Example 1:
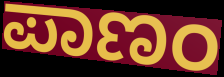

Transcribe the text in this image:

ಪಾಣಂ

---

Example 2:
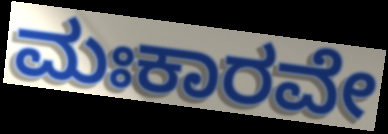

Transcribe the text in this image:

ಮಃಕಾರವೇ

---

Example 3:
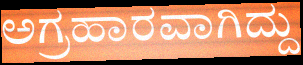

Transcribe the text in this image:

ಅಗ್ರಹಾರವಾಗಿದ್ದು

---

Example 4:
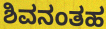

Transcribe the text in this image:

ಶಿವನಂತಹ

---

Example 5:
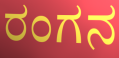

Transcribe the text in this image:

ರಂಗನ